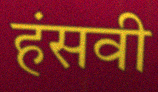
हंसवी